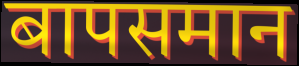
बापसमान